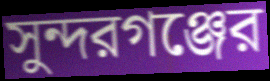
সুন্দরগঞ্জের